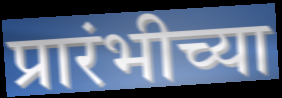
प्रारंभीच्या